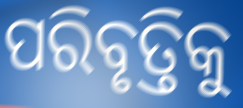
ପରିବୃତ୍ତିକୁ